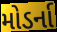
મોડર્ના